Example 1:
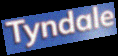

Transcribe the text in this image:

Tyndale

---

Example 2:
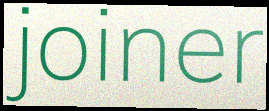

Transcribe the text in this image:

joiner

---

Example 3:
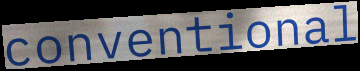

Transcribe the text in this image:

conventional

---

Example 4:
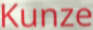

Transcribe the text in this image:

Kunze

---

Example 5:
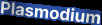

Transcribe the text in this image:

Plasmodium